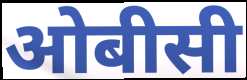
ओबीसी